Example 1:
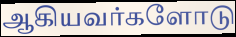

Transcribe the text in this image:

ஆகியவர்களோடு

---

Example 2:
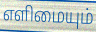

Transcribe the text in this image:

எளிமையும்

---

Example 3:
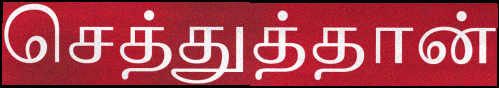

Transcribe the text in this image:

செத்துத்தான்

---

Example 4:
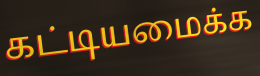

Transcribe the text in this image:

கட்டியமைக்க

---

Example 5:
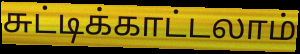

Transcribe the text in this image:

சுட்டிக்காட்டலாம்